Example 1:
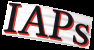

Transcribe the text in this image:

IAPs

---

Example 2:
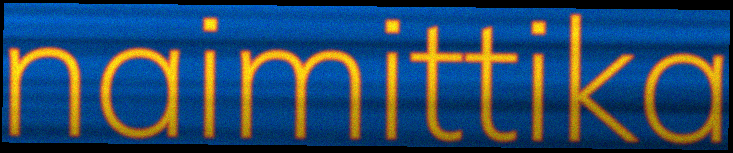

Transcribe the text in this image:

naimittika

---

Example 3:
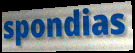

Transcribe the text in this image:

spondias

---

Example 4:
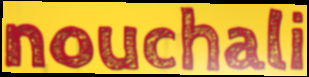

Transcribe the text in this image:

nouchali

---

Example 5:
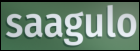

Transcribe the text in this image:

saagulo